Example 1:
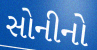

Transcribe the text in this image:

સોનીનો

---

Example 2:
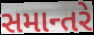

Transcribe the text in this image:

સમાન્તરે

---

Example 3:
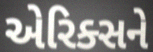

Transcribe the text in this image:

એરિક્સને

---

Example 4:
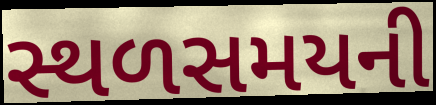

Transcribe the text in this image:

સ્થળસમયની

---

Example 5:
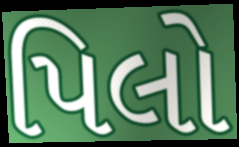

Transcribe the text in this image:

પિલો